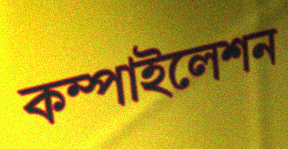
কম্পাইলেশন